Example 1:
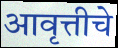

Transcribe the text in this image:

आवृत्तीचे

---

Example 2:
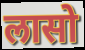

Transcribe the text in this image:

लासो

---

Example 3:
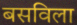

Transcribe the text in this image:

बसविला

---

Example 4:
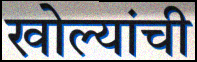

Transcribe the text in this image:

खोल्यांची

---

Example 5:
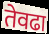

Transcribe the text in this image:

तेवढा